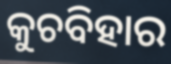
କୁଚବିହାର